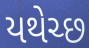
યથેચ્છ